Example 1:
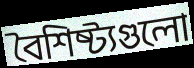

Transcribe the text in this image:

বৈশিষ্ট্যগুলো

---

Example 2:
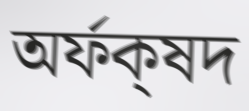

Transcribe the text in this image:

অর্ফক্‌ষদ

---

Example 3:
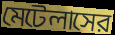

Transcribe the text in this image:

মেটেলাসের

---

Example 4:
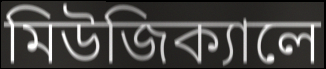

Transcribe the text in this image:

মিউজিক্যালে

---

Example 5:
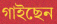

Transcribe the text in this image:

গাইছেন